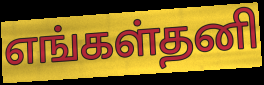
எங்கள்தனி